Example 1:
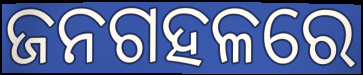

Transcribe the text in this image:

ଜନଗହଳରେ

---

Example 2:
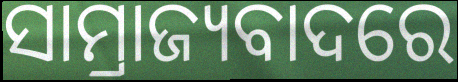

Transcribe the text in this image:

ସାମ୍ରାଜ୍ୟବାଦରେ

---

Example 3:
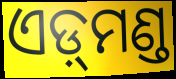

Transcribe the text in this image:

ଏଡ଼୍‌ମଣ୍ଡ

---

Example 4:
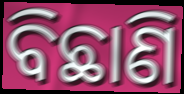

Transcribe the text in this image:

ବିଛାଣି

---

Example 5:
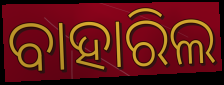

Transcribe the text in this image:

ବାହାରିଲ